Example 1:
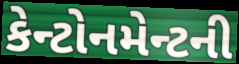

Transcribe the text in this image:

કેન્ટોનમેન્ટની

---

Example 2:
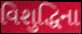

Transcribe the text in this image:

વિશુદ્ધિના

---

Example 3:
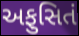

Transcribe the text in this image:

અફુસિતં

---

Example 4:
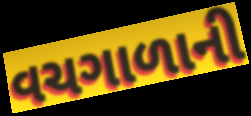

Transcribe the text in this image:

વચગાળાની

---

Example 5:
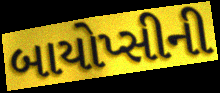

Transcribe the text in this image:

બાયોપ્સીની